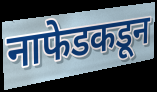
नाफेडकडून